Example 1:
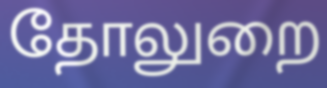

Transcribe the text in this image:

தோலுறை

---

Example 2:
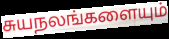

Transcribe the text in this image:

சுயநலங்களையும்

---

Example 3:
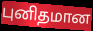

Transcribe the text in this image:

புனிதமான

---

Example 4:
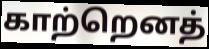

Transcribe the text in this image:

காற்றெனத்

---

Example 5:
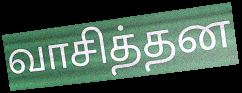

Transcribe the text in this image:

வாசித்தன